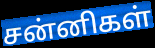
சன்னிகள்